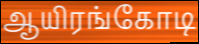
ஆயிரங்கோடி